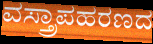
ವಸ್ತ್ರಾಪಹರಣದ